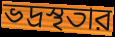
ভদ্রস্থতার